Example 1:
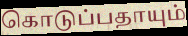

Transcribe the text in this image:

கொடுப்பதாயும்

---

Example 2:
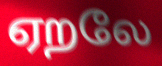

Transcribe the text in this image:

ஏறலே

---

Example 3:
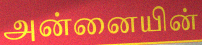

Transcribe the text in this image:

அன்னையின்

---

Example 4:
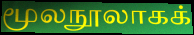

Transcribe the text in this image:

மூலநூலாகக்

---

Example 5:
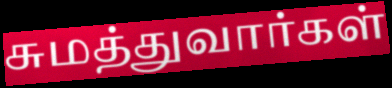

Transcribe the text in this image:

சுமத்துவார்கள்